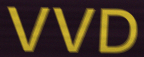
VVD